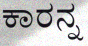
ಕಾರನ್ನ